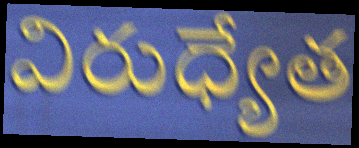
విరుధ్యేత